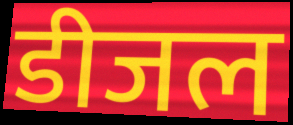
डीजल